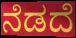
ನೆಡದೆ